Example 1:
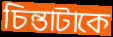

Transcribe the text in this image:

চিন্তাটাকে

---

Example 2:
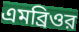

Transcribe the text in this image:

এমব্রিওর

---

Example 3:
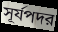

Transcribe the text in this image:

সূর্যপদর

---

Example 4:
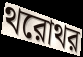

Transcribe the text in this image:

থরোথর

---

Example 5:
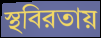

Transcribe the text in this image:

স্থবিরতায়